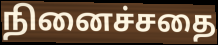
நினைச்சதை